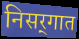
निसर्गात